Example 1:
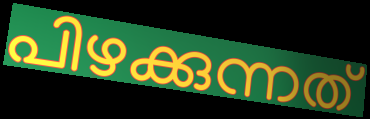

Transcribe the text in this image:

പിഴക്കുന്നത്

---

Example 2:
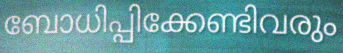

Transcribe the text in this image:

ബോധിപ്പിക്കേണ്ടിവരും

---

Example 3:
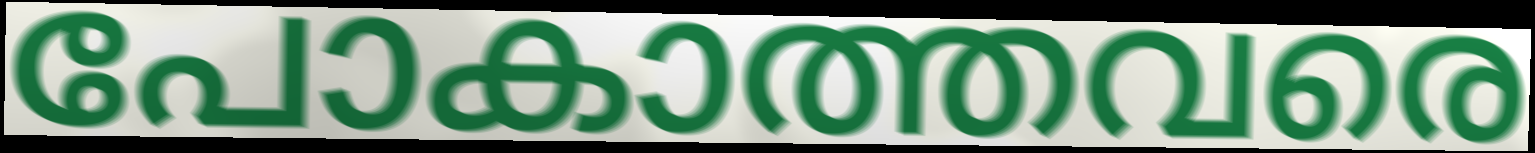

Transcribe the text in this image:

പോകാത്തവരെ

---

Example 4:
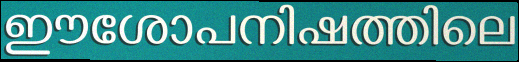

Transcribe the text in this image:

ഈശോപനിഷത്തിലെ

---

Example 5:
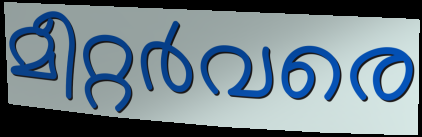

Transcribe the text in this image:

മീറ്റർവരെ